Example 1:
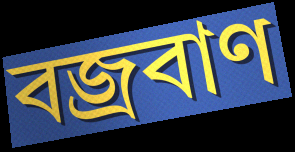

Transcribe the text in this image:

বজ্রবাণ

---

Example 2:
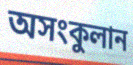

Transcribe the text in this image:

অসংকুলান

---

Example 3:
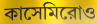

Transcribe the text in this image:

কাসেমিরোও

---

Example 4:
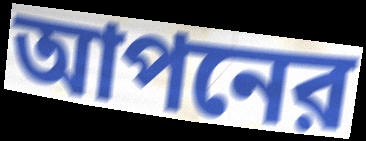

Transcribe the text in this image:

আপনের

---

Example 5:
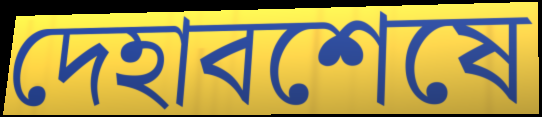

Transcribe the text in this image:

দেহাবশেষে